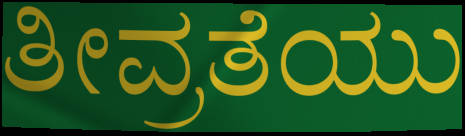
ತೀವ್ರತೆಯು